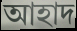
আহাদ